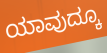
ಯಾವುದ್ಕೂ